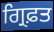
ਗ੍ਰਿਫ਼ਤ